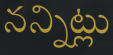
నన్నిట్లు